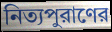
নিত্যপুরাণের